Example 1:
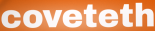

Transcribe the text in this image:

coveteth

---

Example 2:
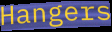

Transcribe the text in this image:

Hangers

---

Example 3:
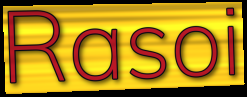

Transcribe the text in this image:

Rasoi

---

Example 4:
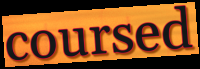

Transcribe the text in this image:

coursed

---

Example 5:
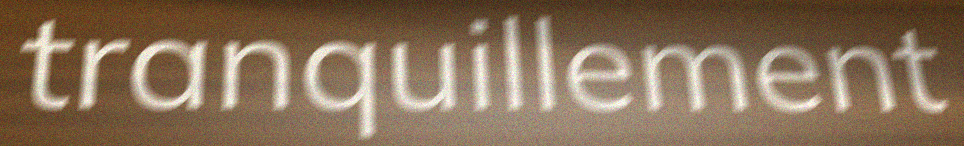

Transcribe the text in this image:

tranquillement